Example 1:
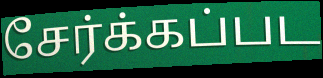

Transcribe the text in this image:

சேர்க்கப்பட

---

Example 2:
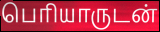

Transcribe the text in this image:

பெரியாருடன்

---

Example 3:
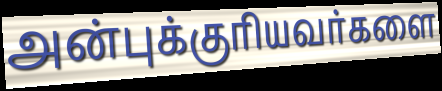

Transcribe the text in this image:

அன்புக்குரியவர்களை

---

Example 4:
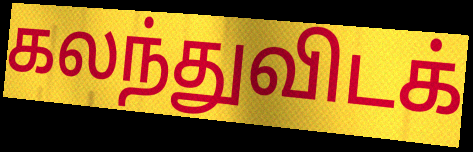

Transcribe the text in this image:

கலந்துவிடக்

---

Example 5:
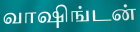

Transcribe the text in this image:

வாஷிங்டன்